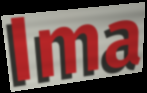
Ima